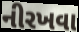
નીરખવા